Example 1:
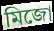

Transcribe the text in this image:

মিজো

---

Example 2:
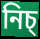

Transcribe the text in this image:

নিচ্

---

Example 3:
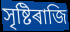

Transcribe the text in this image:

সৃষ্টিৰাজি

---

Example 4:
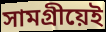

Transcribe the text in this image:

সামগ্ৰীয়েই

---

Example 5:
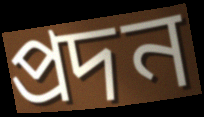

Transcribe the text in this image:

প্ৰদন